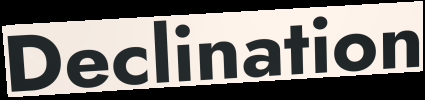
Declination